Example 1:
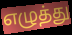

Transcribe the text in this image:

எழுத்து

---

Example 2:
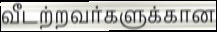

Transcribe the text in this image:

வீடற்றவர்களுக்கான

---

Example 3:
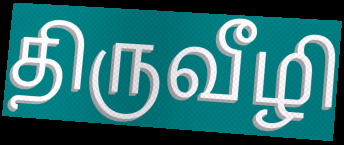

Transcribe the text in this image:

திருவீழி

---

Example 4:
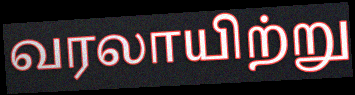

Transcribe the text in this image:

வரலாயிற்று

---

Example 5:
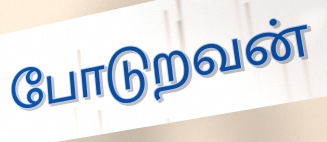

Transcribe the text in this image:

போடுறவன்